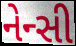
નેન્સી